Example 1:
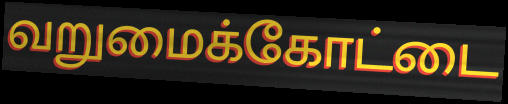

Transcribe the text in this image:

வறுமைக்கோட்டை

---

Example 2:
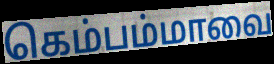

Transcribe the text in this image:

கெம்பம்மாவை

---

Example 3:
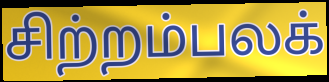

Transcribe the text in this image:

சிற்றம்பலக்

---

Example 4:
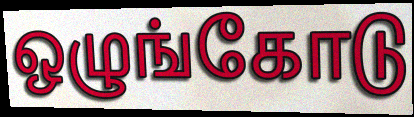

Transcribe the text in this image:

ஒழுங்கோடு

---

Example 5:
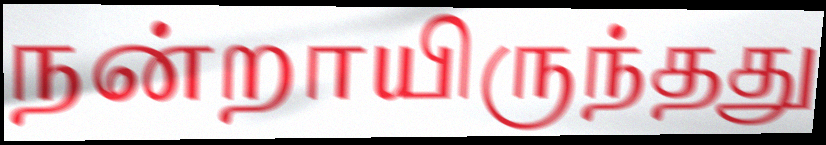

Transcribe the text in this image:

நன்றாயிருந்தது